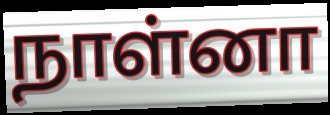
நாள்னா